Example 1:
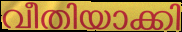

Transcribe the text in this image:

വീതിയാക്കി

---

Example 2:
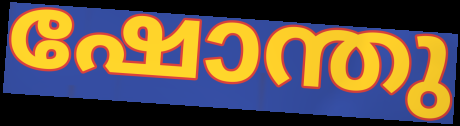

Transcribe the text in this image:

ഷോന്തു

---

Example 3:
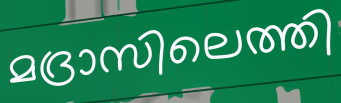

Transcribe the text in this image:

മദ്രാസിലെത്തി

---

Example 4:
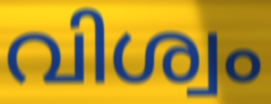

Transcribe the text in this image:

വിശ്വം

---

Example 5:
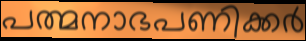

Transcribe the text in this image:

പത്മനാഭപണിക്കർ